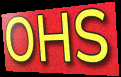
OHS